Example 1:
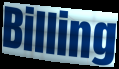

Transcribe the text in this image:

Billing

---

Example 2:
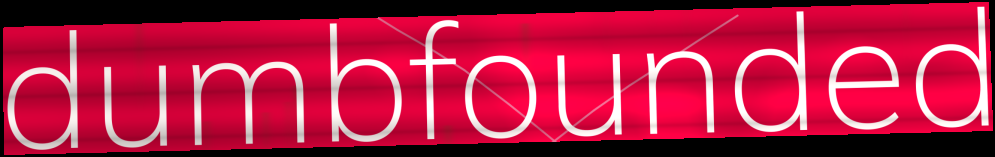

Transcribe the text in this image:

dumbfounded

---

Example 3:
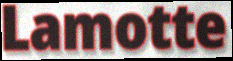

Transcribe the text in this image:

Lamotte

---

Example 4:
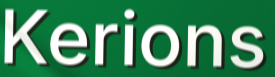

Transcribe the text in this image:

Kerions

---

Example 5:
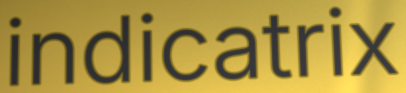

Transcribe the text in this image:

indicatrix